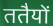
ततैयों